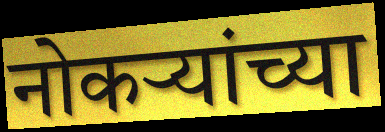
नोकऱ्यांच्या